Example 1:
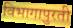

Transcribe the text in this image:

विभागापुरती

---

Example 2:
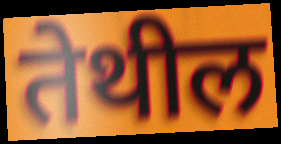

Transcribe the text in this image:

तेथील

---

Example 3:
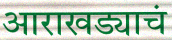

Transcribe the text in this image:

आराखड्याचं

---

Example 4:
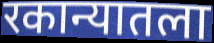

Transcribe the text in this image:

रकान्यातला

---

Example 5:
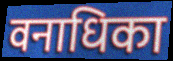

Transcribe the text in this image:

वनाधिका